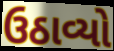
ઉઠાવ્યો